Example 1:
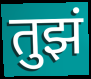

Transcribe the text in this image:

तुझं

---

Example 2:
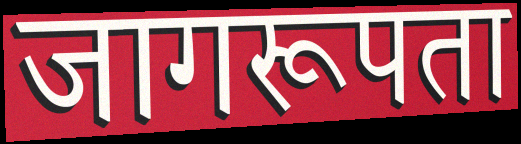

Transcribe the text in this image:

जागरूपता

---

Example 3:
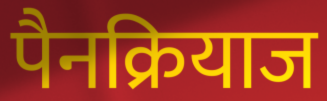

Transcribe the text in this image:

पैनक्रियाज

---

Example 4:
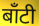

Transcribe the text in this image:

बाँटी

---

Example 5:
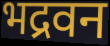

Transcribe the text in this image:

भद्रवन